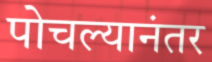
पोचल्यानंतर